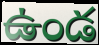
ఉండ